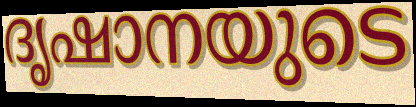
ദൃഷാനയുടെ